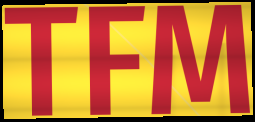
TFM